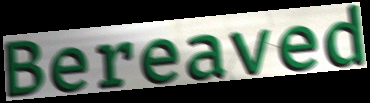
Bereaved